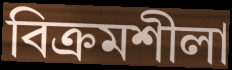
বিক্ৰমশীলা